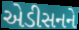
એડીસનને